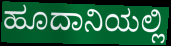
ಹೂದಾನಿಯಲ್ಲಿ